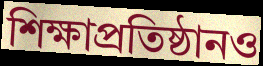
শিক্ষাপ্রতিষ্ঠানও